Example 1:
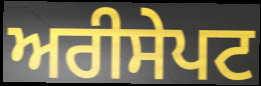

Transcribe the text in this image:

ਅਰੀਸੇਪਟ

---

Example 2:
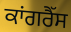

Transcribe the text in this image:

ਕਾਂਗਰੈੱਸ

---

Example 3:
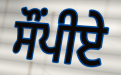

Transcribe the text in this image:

ਸੌਂਪੀਏ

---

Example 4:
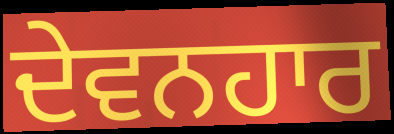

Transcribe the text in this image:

ਦੇਵਨਹਾਰ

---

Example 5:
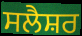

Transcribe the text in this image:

ਸਲੈਸ਼ਰ